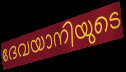
ദേവയാനിയുടെ